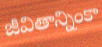
జీవితాన్నింకా